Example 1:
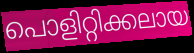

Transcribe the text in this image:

പൊളിറ്റിക്കലായ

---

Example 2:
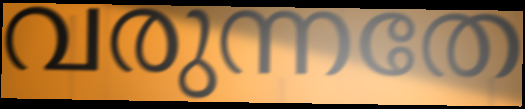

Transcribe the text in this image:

വരുന്നതേ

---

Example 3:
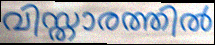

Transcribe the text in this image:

വിസ്താരത്തിൽ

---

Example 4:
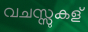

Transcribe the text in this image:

വചസ്സുകള്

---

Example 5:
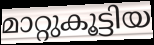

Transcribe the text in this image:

മാറ്റുകൂട്ടിയ